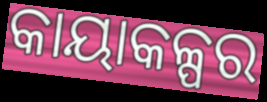
କାୟାକଳ୍ପର